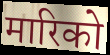
मारिको